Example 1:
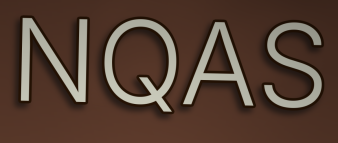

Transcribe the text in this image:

NQAS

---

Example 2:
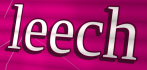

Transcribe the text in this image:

leech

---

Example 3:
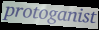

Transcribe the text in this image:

protoganist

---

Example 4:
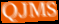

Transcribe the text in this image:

QJMS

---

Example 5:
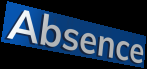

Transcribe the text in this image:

Absence